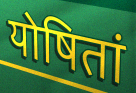
योषितां